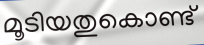
മൂടിയതുകൊണ്ട്